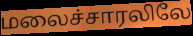
மலைச்சாரலிலே